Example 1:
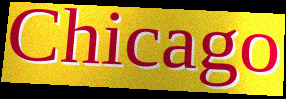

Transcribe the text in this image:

Chicago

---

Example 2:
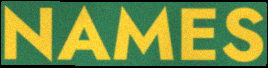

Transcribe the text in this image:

NAMES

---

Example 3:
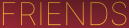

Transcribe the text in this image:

FRIENDS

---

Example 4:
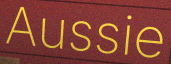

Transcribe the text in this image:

Aussie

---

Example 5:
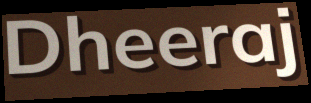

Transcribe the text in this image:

Dheeraj